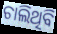
ଚାଲିଥିବି